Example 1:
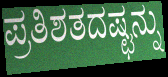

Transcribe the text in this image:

ಪ್ರತಿಶತದಷ್ಟನ್ನು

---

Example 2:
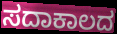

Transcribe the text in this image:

ಸದಾಕಾಲದ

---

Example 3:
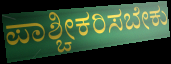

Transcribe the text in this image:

ಪಾಶ್ಚೀಕರಿಸಬೇಕು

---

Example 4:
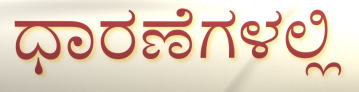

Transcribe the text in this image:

ಧಾರಣೆಗಳಲ್ಲಿ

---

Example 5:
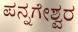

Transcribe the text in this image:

ಪನ್ನಗೇಶ್ವರ